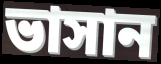
ভাসান